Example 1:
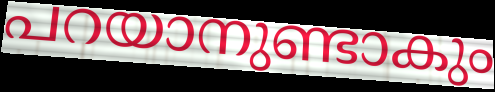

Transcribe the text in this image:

പറയാനുണ്ടാകും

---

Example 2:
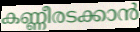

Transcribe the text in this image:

കണ്ണീരടക്കാൻ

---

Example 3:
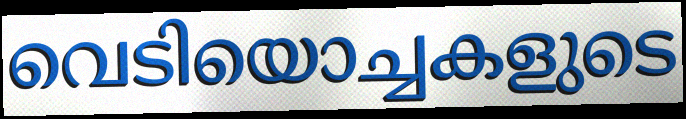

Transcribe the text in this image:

വെടിയൊച്ചകളുടെ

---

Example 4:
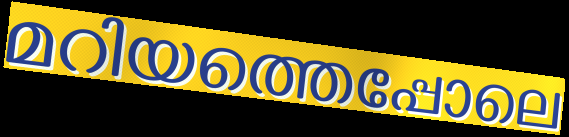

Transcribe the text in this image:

മറിയത്തെപ്പോലെ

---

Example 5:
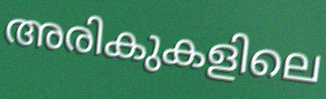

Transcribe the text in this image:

അരികുകളിലെ